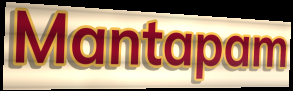
Mantapam